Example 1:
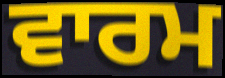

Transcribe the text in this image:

ਵਾਰਮ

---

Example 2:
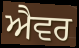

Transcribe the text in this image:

ਐਵਰ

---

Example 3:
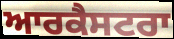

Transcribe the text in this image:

ਆਰਕੈਸਟਰਾ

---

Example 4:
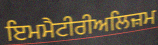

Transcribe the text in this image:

ਇਮਮੈਟੀਰੀਅਲਿਜ਼ਮ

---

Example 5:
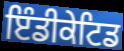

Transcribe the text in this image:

ਇੰਡੀਕੇਟਿਡ